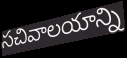
సచివాలయాన్ని